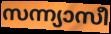
സന്ന്യാസീ